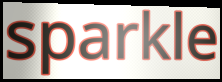
sparkle